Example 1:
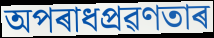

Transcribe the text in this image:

অপৰাধপ্ৰৱণতাৰ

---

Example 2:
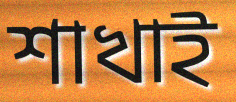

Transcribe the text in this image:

শাখাই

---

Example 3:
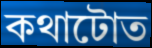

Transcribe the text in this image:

কথাটোত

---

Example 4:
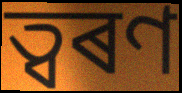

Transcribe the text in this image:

ত্বৰণ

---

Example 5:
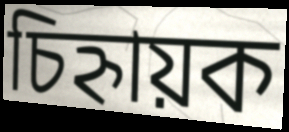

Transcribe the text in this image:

চিহ্নায়ক